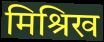
मिश्रिख